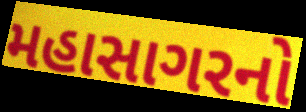
મહાસાગરનો